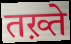
तख़्ते